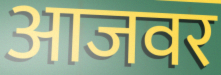
आजवर